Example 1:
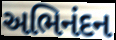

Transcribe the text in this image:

અભિનંદન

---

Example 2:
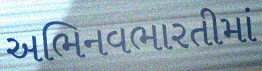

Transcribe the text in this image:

અભિનવભારતીમાં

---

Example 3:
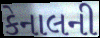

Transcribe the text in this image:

કેનાલની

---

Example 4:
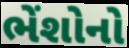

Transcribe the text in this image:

ભેંશોનો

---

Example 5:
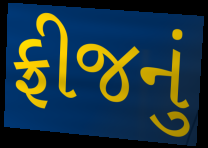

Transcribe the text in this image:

ફ્રીજનું